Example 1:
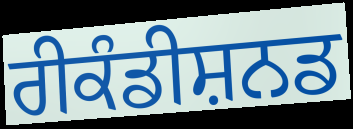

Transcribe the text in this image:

ਰੀਕੰਡੀਸ਼ਨਡ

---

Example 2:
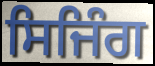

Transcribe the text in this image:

ਸਿਜਿੰਗ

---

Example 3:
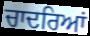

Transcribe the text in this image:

ਚਾਦਰਿਆਂ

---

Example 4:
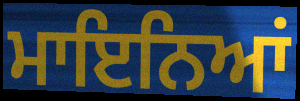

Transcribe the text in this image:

ਮਾਇਨਿਆਂ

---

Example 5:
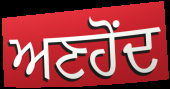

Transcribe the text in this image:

ਅਣਹੋਂਦ